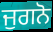
ਜੁਗਨੋ